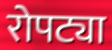
रोपट्या